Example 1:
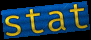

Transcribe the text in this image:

stat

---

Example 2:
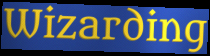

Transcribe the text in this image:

Wizarding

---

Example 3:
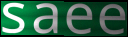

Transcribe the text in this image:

saee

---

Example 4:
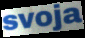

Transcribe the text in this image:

svoja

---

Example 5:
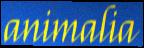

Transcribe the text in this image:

animalia